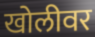
खोलीवर